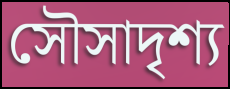
সৌসাদৃশ্য